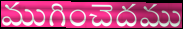
ముగించెదము